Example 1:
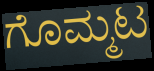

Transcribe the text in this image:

ಗೊಮ್ಮಟ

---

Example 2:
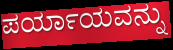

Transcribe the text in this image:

ಪರ್ಯಾಯವನ್ನು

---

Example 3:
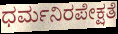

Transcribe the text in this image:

ಧರ್ಮನಿರಪೇಕ್ಷತೆ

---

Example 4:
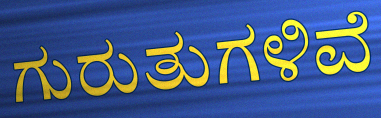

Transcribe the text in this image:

ಗುರುತುಗಳಿವೆ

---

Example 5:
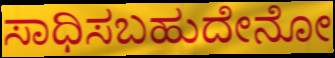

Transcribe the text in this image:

ಸಾಧಿಸಬಹುದೇನೋ